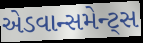
એડવાન્સમેન્ટ્સ